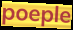
poeple